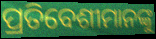
ପ୍ରତିବେଶୀମାନଙ୍କୁ